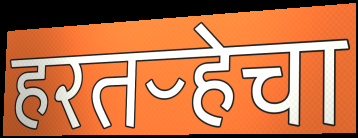
हरतऱ्हेचा